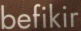
befikir